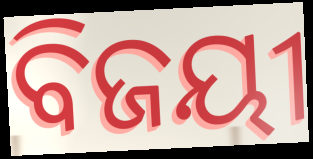
ବିଜୟୀ